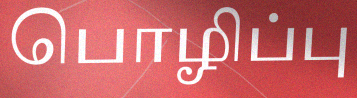
பொழிப்பு